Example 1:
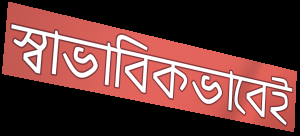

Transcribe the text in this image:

স্বাভাবিকভাবেই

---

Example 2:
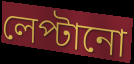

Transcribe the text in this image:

লেপ্টানো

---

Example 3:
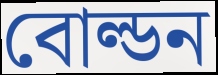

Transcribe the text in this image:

বোল্ডন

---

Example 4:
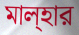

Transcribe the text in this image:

মাল্হার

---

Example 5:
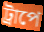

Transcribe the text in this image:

ট্রাপে